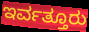
ಇರ್ವತ್ತೂರು